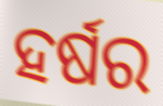
ହର୍ଷର